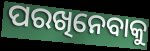
ପରଖିନେବାକୁ